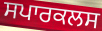
ਸਪਾਰਕਲਸ